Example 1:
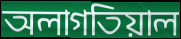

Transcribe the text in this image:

অলাগতিয়াল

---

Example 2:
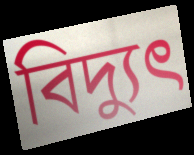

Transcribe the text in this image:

বিদ্যুৎ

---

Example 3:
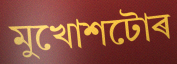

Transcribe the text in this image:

মুখোশটোৰ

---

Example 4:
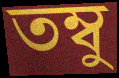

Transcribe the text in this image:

তম্বু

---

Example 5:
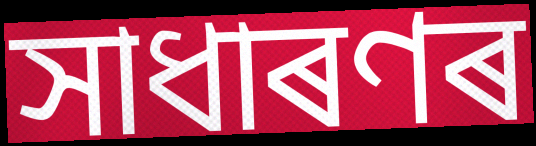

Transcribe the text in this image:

সাধাৰণৰ